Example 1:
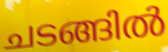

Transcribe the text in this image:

ചടങ്ങിൽ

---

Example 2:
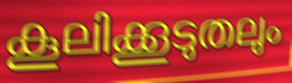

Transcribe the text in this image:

കൂലിക്കൂടുതലും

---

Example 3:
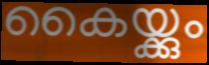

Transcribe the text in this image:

കൈയ്ക്കും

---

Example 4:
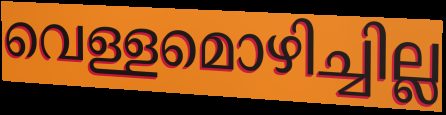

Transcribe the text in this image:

വെള്ളമൊഴിച്ചില്ല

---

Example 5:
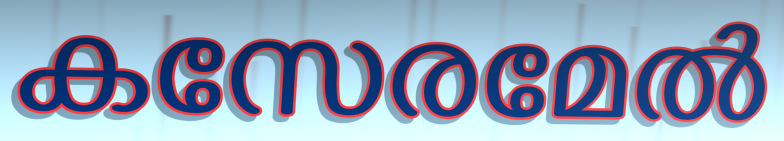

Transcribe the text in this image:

കസേരമേൽ